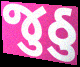
જુઠુ